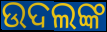
ଉଦଲଙ୍କ